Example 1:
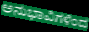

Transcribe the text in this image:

ಅನುಭಾವಿಗಳಿಂದ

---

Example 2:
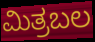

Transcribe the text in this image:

ಮಿತ್ರಬಲ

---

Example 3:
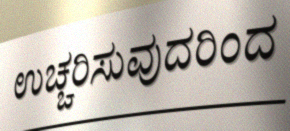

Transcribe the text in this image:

ಉಚ್ಚರಿಸುವುದರಿಂದ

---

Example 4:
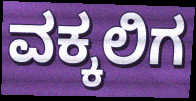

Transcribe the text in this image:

ವಕ್ಕಲಿಗ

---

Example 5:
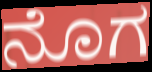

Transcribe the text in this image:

ನೊಗ